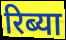
रिब्या